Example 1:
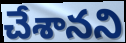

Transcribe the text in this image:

చేశానని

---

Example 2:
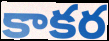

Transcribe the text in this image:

కాకర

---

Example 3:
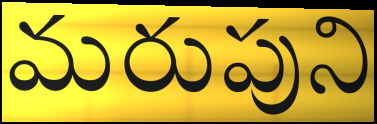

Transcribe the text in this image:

మరుపుని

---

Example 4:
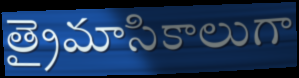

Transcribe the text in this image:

త్రైమాసికాలుగా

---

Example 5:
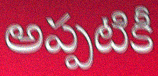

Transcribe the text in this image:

అప్పటికీ